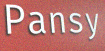
Pansy